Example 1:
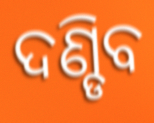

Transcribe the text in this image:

ଦଣ୍ଡିବ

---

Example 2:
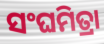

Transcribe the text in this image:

ସଂଘମିତ୍ରା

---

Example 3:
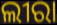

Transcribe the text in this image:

ଲୀରା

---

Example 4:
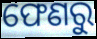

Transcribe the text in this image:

ଫେଣରୁ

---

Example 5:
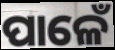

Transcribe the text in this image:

ପାଳେଁ